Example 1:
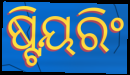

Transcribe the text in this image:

ଷ୍ଟିୟରିଂ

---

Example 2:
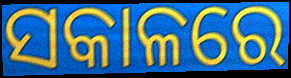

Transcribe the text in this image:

ସକାଳରେ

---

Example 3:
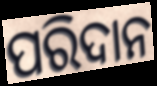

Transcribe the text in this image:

ପରିଦାନ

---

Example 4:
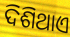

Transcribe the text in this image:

ଦିଶିଥାଏ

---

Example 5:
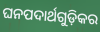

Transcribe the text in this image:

ଘନପଦାର୍ଥଗୁଡ଼ିକର